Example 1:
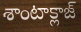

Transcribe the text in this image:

శాంటాక్లాజ్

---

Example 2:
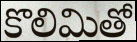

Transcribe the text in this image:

కొలిమితో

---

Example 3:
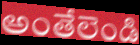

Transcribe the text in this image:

అంతేలెండి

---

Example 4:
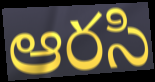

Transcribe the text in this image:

ఆరసి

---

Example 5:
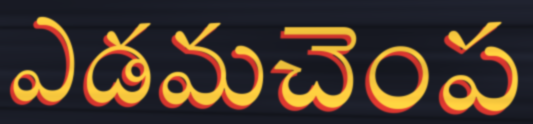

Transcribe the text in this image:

ఎడమచెంప